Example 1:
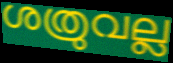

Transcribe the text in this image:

ശത്രുവല്ല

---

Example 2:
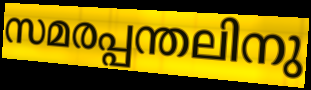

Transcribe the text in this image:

സമരപ്പന്തലിനു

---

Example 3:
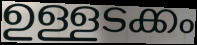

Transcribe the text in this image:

ഉള്ളടക്കം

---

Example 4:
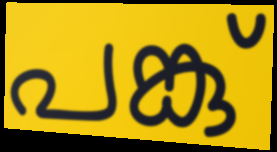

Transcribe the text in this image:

പങ്കു്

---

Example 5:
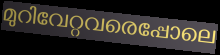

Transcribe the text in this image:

മുറിവേറ്റവരെപ്പോലെ